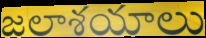
జలాశయాలు